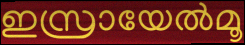
ഇസ്രായേൽമൂ